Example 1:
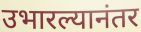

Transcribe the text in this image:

उभारल्यानंतर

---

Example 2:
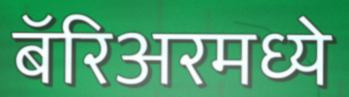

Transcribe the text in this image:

बॅरिअरमध्ये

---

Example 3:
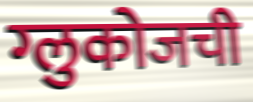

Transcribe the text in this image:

ग्लुकोजची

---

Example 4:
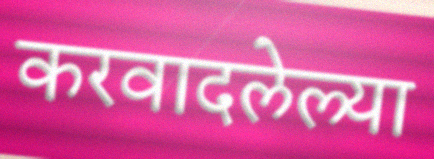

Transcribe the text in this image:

करवादलेल्या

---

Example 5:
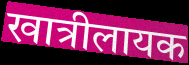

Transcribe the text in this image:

खात्रीलायक